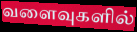
வளைவுகளில்